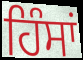
ਹਿੰਸਾਂ